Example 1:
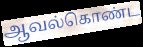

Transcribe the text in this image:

ஆவல்கொண்ட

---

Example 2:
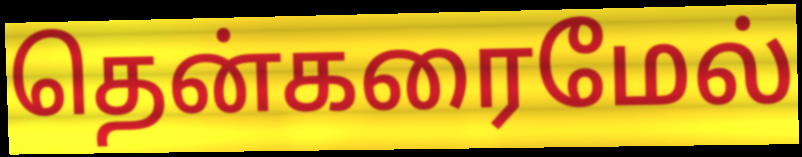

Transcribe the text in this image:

தென்கரைமேல்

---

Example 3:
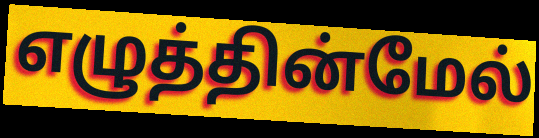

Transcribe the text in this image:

எழுத்தின்மேல்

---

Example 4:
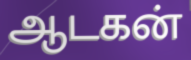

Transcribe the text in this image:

ஆடகன்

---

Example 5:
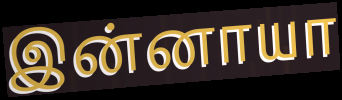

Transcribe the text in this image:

இன்னாயா